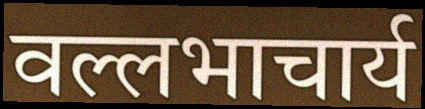
वल्‍लभाचार्य